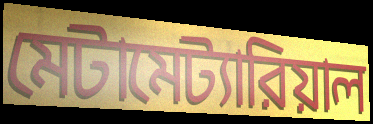
মেটামেট্যারিয়াল